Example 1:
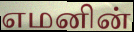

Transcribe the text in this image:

எமனின்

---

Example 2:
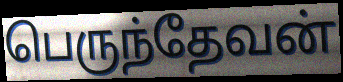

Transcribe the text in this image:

பெருந்தேவன்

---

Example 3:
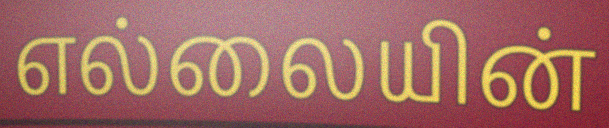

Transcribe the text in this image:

எல்லையின்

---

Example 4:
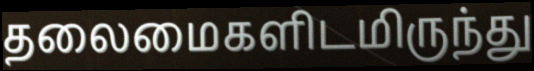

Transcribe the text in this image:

தலைமைகளிடமிருந்து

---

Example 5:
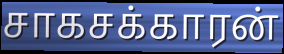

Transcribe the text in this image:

சாகசக்காரன்